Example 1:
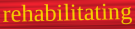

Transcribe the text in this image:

rehabilitating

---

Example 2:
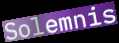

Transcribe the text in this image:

Solemnis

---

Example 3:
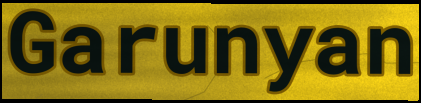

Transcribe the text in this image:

Garunyan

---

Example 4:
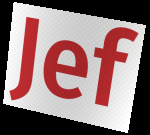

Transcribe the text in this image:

Jef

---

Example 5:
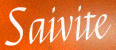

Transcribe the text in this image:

Saivite